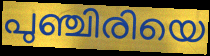
പുഞ്ചിരിയെ